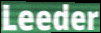
Leeder